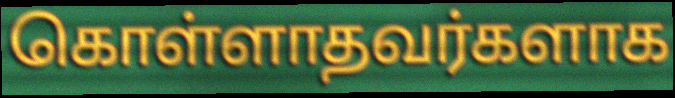
கொள்ளாதவர்களாக